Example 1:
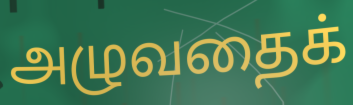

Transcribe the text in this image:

அழுவதைக்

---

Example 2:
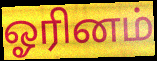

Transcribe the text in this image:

ஓரினம்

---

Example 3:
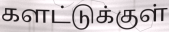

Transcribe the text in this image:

களட்டுக்குள்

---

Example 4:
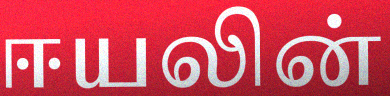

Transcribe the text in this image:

ஈயலின்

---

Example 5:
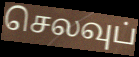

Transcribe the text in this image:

செலவுப்